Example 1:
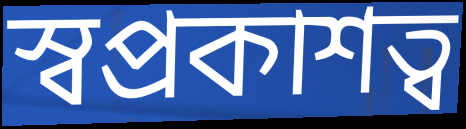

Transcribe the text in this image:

স্বপ্রকাশত্ব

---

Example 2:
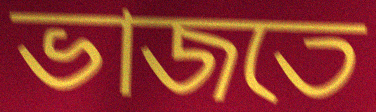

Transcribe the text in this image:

ভাজতে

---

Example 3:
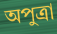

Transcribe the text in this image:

অপুত্রা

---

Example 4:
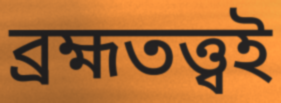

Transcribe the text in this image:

ব্রহ্মতত্ত্বই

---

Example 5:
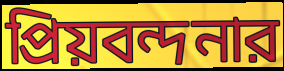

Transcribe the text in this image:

প্রিয়বন্দনার